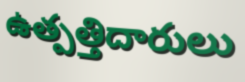
ఉత్పత్తిదారులు